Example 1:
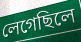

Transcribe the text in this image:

লেগেছিলে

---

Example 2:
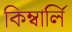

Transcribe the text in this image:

কিম্বার্লি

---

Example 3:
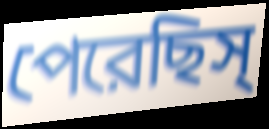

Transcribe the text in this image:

পেরেছিস্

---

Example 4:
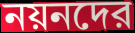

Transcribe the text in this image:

নয়নদের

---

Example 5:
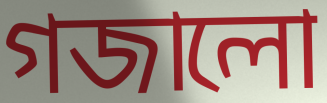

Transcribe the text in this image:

গজালো